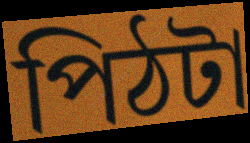
পিঠটা